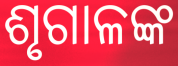
ଶୃଗାଳଙ୍କ